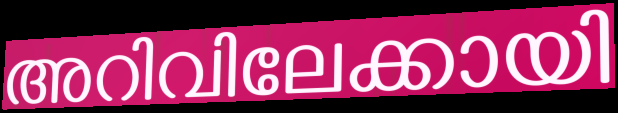
അറിവിലേക്കായി